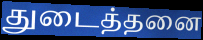
துடைத்தனை